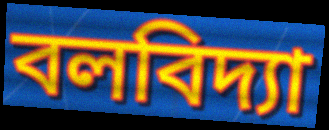
বলবিদ্যা